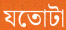
যতোটা